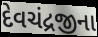
દેવચંદ્રજીના